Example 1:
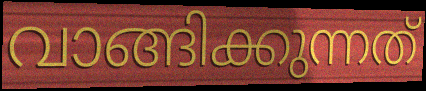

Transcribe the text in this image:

വാങ്ങിക്കുന്നത്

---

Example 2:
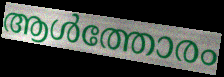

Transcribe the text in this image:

ആൾത്തോരം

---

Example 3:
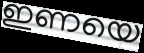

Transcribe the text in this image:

ഇണയെ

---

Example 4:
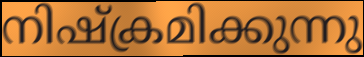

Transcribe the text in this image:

നിഷ്ക്രമിക്കുന്നു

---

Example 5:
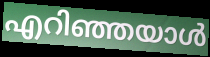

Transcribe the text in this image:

എറിഞ്ഞയാൾ